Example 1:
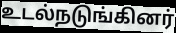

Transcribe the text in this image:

உடல்நடுங்கினர்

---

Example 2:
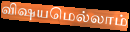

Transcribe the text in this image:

விஷயமெல்லாம்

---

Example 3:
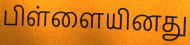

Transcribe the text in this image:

பிள்ளையினது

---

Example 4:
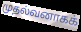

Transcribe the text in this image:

முதல்வனாகக்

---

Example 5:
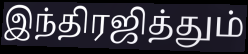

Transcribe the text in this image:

இந்திரஜித்தும்